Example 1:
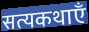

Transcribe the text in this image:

सत्यकथाएँ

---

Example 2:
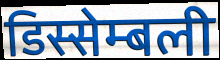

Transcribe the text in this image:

डिस्सेम्बली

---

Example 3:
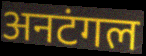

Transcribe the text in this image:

अनटंगल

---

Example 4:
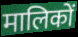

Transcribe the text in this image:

मालिकों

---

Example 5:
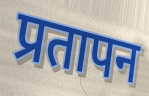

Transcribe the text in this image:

प्रतापन